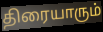
திரையாரும்